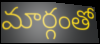
మార్గంతో